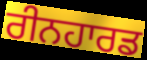
ਰੀਨਹਾਰਡ